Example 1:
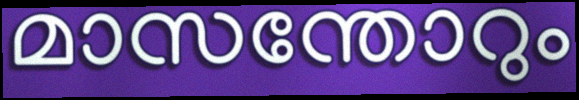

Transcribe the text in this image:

മാസന്തോറും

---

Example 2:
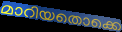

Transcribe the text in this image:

മാറിയതൊക്കെ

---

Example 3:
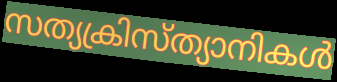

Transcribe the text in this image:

സത്യക്രിസ്ത്യാനികൾ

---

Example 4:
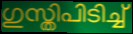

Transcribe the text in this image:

ഗുസ്തിപിടിച്ച്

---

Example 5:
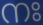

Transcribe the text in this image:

നഃ